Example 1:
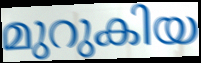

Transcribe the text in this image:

മുറുകിയ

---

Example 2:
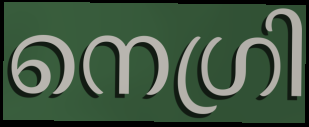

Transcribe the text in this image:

നെഗ്രി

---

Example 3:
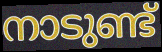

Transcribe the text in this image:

നാടുണ്ട്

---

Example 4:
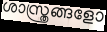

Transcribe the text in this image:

ശാസ്ത്രങ്ങളോ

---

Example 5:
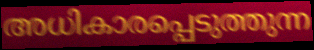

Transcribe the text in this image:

അധികാരപ്പെടുത്തുന്ന